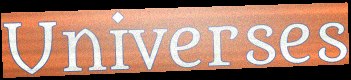
Universes